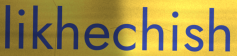
likhechish